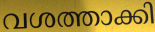
വശത്താക്കി